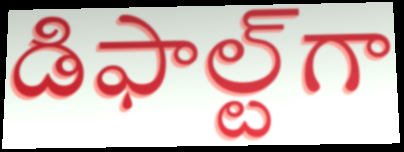
డిఫాల్ట్‌గా